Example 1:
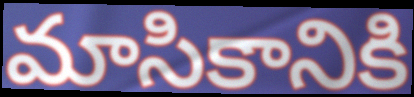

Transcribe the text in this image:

మాసికానికి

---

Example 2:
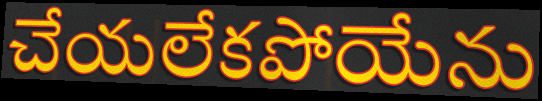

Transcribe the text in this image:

చేయలేకపోయేను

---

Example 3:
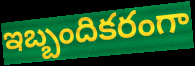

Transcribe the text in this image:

ఇబ్బందికరంగా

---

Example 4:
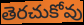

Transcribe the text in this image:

తెరచుకోవు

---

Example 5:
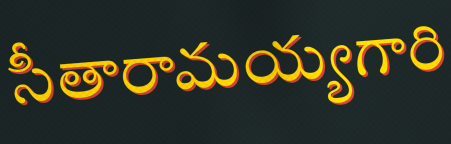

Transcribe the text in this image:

సీతారామయ్యగారి